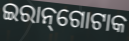
ଇରାନ୍‌ଗୋଟାକ